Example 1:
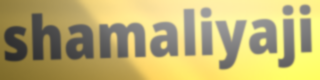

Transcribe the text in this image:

shamaliyaji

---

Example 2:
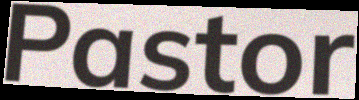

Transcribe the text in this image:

Pastor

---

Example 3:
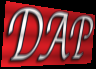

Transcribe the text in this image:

DAP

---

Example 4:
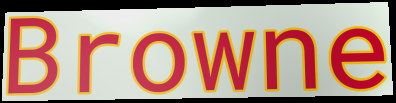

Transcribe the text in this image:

Browne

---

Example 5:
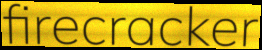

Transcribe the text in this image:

firecracker